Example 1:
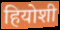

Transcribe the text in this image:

हियोशी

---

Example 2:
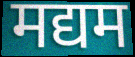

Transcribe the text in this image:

मद्यम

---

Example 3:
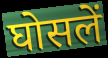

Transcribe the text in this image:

घोसलें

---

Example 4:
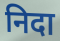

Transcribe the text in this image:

निदा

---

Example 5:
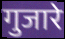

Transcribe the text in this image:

गुजारे